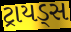
ટ્રાયડ્સ